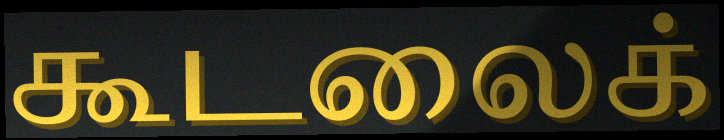
கூடலைக்